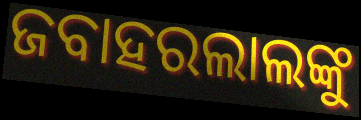
ଜବାହରଲାଲଙ୍କୁ